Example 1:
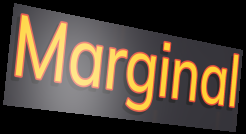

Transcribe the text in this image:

Marginal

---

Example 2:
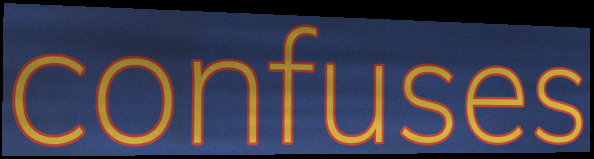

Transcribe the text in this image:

confuses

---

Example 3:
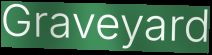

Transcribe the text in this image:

Graveyard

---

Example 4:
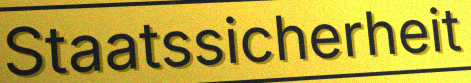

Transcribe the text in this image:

Staatssicherheit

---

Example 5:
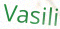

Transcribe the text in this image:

Vasili